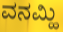
ವನಮ್ಹಿ